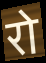
रो